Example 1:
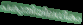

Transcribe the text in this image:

പകുതിയിലധികം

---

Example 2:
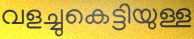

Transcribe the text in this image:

വളച്ചുകെട്ടിയുള്ള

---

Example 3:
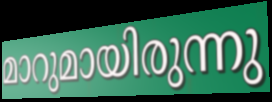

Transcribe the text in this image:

മാറുമായിരുന്നു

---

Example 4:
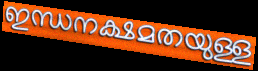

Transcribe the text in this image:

ഇന്ധനക്ഷമതയുള്ള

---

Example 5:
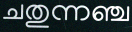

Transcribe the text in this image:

ചതുന്നഞ്ച